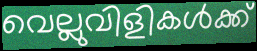
വെല്ലുവിളികൾക്ക്